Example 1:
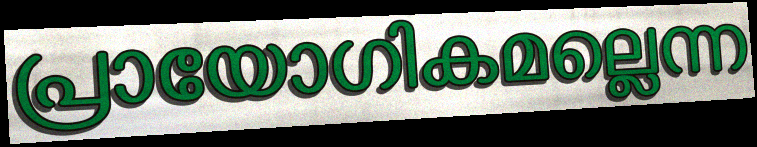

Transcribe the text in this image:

പ്രായോഗികമല്ലെന്ന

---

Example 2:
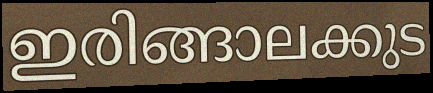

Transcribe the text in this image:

ഇരിങ്ങാലക്കുട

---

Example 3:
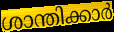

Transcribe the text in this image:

ശാന്തിക്കാർ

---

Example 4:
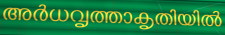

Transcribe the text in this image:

അർധവൃത്താകൃതിയിൽ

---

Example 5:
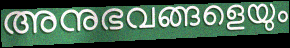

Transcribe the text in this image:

അനുഭവങ്ങളെയും